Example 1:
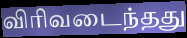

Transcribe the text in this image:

விரிவடைந்தது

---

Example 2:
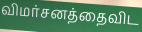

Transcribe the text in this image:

விமர்சனத்தைவிட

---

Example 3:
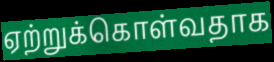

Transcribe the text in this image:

ஏற்றுக்கொள்வதாக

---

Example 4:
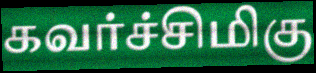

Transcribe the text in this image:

கவர்ச்சிமிகு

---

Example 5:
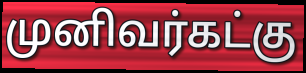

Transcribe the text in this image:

முனிவர்கட்கு